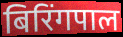
बिरिंगपाल